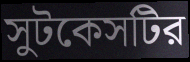
সুটকেসটির